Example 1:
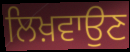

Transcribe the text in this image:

ਲਿਖ਼ਵਾਉਣ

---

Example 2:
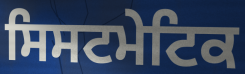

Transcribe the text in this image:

ਸਿਸਟਮੇਟਿਕ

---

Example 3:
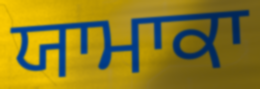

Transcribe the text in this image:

ਯਾਮਾਕਾ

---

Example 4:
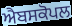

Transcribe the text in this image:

ਐਬਸਕੋਪਲ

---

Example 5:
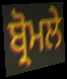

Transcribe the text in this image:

ਬ੍ਰੋਮਲੇ